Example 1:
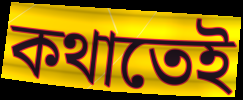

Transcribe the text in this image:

কথাতেই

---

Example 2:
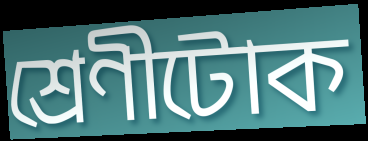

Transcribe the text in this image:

শ্ৰেণীটোক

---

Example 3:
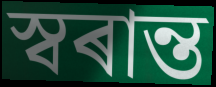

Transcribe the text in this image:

স্বৰান্ত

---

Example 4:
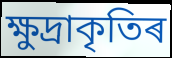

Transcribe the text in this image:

ক্ষুদ্ৰাকৃতিৰ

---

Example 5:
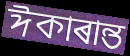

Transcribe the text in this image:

ঈকাৰান্ত